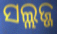
ସଲ୍ଲଜ୍ଜ